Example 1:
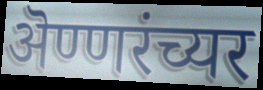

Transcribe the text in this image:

ऄण्णरंच्यर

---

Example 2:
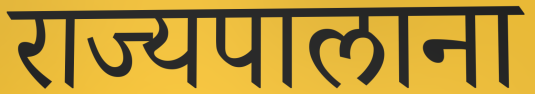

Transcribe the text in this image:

राज्यपालाना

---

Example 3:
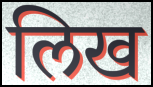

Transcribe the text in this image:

लिख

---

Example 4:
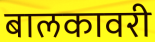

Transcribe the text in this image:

बालकावरी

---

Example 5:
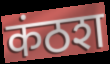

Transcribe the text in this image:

कंठश